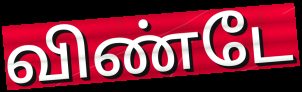
விண்டே